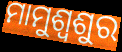
ମାମୁଶ୍ବଶୁର